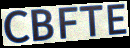
CBFTE